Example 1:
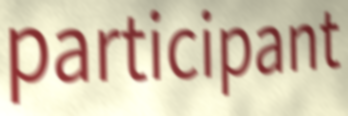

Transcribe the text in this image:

participant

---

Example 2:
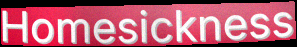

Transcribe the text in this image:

Homesickness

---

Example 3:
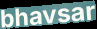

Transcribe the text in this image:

bhavsar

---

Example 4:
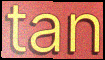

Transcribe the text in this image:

tan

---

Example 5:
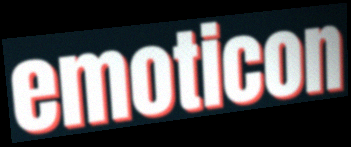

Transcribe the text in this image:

emoticon